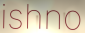
ishno